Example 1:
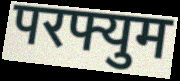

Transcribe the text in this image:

परफ्युम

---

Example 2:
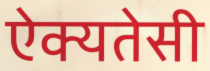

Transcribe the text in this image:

ऐक्यतेसी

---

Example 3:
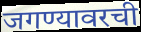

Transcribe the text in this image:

जगण्यावरची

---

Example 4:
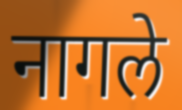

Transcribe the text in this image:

नागले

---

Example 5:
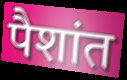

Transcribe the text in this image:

पैशांत